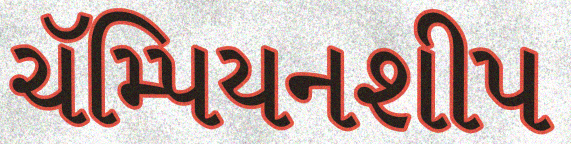
ચૅમ્પિયનશીપ